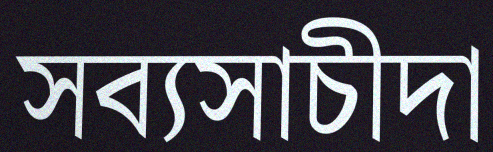
সব্যসাচীদা